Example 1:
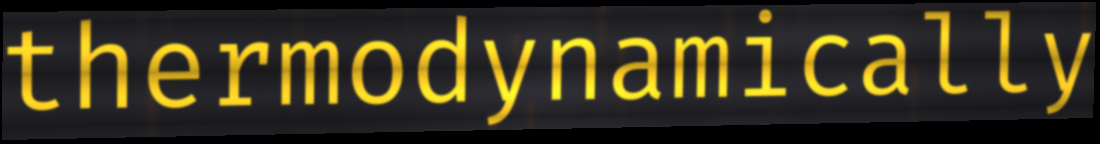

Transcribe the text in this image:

thermodynamically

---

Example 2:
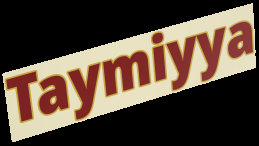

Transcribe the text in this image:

Taymiyya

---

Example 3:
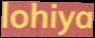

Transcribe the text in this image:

lohiya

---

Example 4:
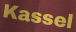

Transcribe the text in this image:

Kassel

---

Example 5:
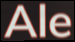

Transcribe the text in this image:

Ale